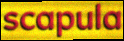
scapula